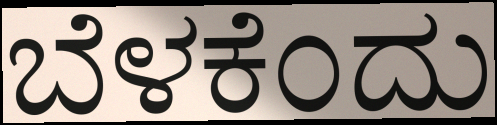
ಬೆಳಕೆಂದು